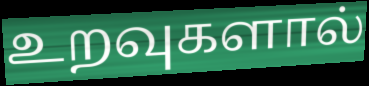
உறவுகளால்